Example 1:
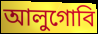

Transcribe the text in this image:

আলুগোবি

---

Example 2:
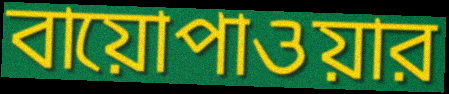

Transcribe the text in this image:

বায়োপাওয়ার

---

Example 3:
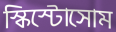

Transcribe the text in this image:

স্কিস্টোসোম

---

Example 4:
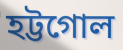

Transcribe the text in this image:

হট্টগোল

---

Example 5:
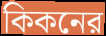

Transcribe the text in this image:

কিকনের